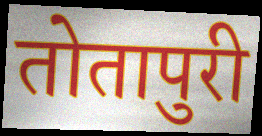
तोतापुरी